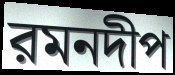
রমনদীপ